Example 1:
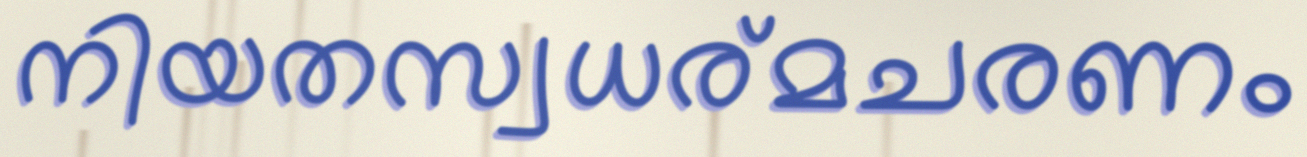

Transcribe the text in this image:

നിയതസ്വധര്മചരണം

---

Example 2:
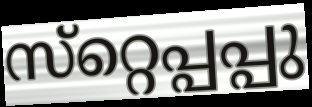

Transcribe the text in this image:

സ്‌റ്റെപ്പപ്പു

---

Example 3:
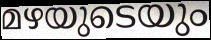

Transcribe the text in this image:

മഴയുടെയും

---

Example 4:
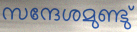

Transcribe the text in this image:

സന്ദേശമുണ്ടു്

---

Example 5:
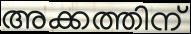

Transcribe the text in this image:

അക്കത്തിന്